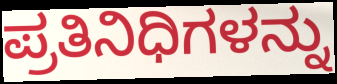
ಪ್ರತಿನಿಧಿಗಳನ್ನು